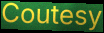
Coutesy